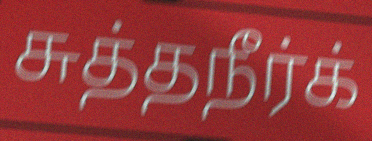
சுத்தநீர்க்